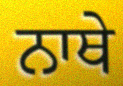
ਨਾਥੇ